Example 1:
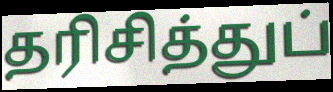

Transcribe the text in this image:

தரிசித்துப்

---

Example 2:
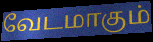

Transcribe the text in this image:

வேடமாகும்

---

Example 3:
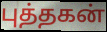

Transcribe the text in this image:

புத்தகன்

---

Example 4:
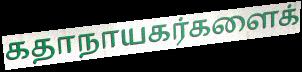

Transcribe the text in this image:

கதாநாயகர்களைக்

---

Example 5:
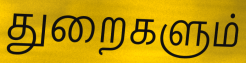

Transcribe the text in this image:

துறைகளும்